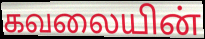
கவலையின்